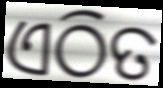
ଏଠିତ